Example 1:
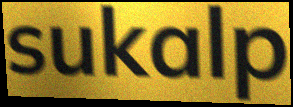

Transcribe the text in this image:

sukalp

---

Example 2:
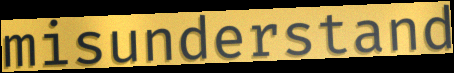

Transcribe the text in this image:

misunderstand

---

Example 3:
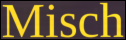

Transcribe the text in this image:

Misch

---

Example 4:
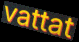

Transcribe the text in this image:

vattat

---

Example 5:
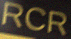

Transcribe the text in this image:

RCR